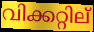
വിക്കറ്റില്